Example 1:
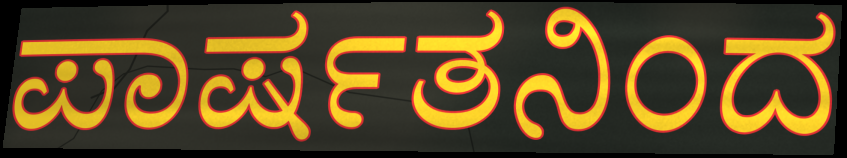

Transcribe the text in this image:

ಪಾರ್ಷತನಿಂದ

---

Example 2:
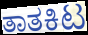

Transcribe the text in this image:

ತಾತಕಿಟ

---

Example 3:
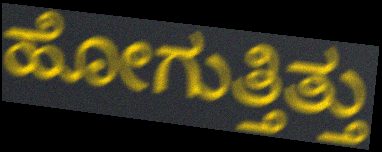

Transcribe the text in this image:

ಹೋಗುತ್ತಿತ್ತು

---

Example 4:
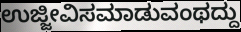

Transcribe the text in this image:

ಉಜ್ಜೀವಿಸಮಾಡುವಂಥದ್ದು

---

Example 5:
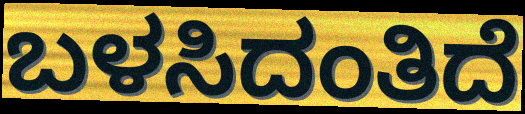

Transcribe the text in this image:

ಬಳಸಿದಂತಿದೆ